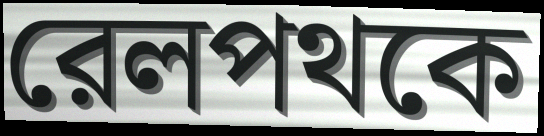
রেলপথকে